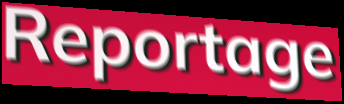
Reportage